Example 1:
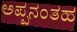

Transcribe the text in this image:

ಅಪ್ಪನಂತಹ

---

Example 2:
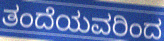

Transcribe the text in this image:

ತಂದೆಯವರಿಂದ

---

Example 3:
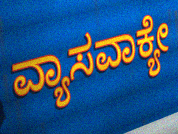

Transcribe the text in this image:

ವ್ಯಾಸವಾಕ್ಯೇ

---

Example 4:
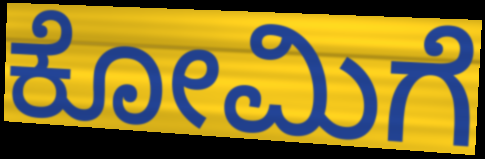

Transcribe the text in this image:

ಕೋಮಿಗೆ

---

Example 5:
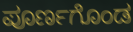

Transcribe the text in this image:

ಪೂರ್ಣಗೊಂಡ